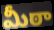
మీఠా